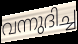
വന്നുദിച്ച